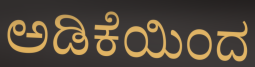
ಅಡಿಕೆಯಿಂದ